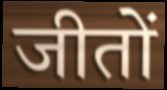
जीतों